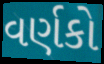
વર્ણકો